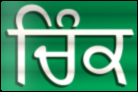
ਚਿੰਕ